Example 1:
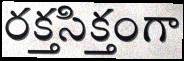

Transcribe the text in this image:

రక్తసిక్తంగా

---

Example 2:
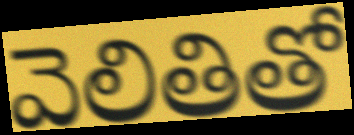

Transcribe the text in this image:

వెలితితో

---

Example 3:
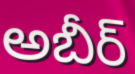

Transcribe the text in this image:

అబీర్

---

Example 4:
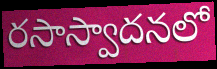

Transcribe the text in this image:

రసాస్వాదనలో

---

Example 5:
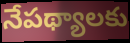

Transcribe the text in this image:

నేపథ్యాలకు